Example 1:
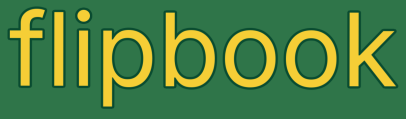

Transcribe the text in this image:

flipbook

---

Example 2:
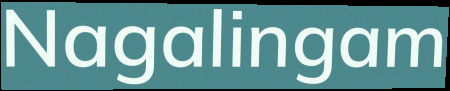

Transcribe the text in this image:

Nagalingam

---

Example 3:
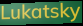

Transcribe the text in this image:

Lukatsky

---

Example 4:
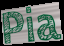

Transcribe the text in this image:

Pia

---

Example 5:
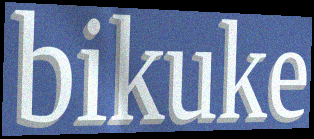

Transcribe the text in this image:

bikuke